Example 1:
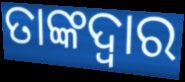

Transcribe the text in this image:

ତାଙ୍କଦ୍ୱାର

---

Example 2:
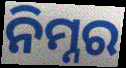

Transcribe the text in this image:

ନିମ୍ନର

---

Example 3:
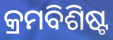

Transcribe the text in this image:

କ୍ରମବିଶିଷ୍ଟ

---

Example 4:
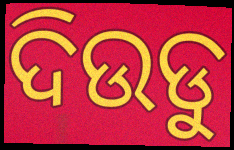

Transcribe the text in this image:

ଦିଉଡୁ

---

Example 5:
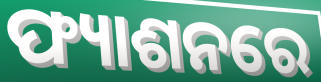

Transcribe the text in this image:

ଫ୍ୟାଶନରେ